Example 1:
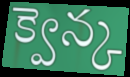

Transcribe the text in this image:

క్వెన్క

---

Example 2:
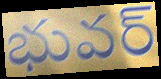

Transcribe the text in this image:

భువర్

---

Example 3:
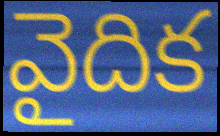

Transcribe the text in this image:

వైదిక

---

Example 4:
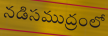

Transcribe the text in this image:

నడిసముద్రంలో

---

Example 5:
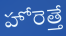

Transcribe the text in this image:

హోరెత్తే